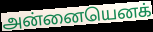
அன்னையெனக்